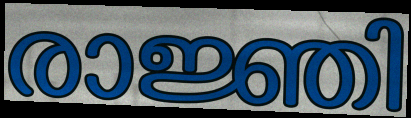
രാജ്ഞി